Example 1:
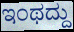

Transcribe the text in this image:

ಇಂಥದ್ದು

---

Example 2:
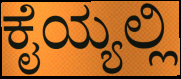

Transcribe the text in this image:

ಕೈಯ್ಯಲ್ಲಿ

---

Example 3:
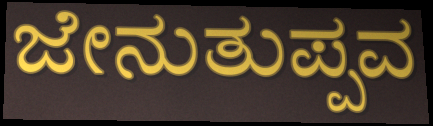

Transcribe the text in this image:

ಜೇನುತುಪ್ಪವ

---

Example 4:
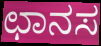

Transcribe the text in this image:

ಛಾನಸ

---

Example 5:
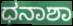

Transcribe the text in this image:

ಧನಾಶಾ